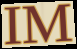
IM